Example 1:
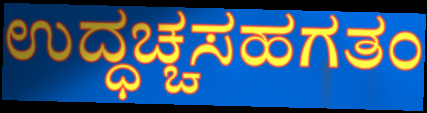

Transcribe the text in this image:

ಉದ್ಧಚ್ಚಸಹಗತಂ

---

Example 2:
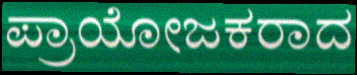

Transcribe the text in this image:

ಪ್ರಾಯೋಜಕರಾದ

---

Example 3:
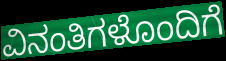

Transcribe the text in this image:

ವಿನಂತಿಗಳೊಂದಿಗೆ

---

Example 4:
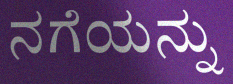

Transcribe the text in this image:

ನಗೆಯನ್ನು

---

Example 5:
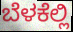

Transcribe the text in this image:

ಬೆಳಕೆಲ್ಲಿ